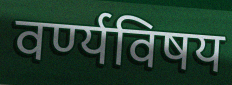
वर्ण्यविषय